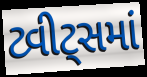
ટ્વીટ્સમાં